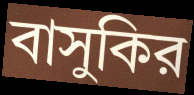
বাসুকির